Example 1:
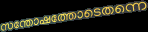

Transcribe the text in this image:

സന്തോഷത്തോടെതന്നെ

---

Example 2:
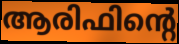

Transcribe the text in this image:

ആരിഫിന്റെ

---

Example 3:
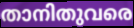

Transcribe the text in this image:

താനിതുവരെ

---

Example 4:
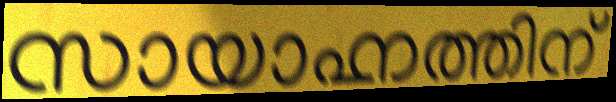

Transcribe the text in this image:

സായാഹ്നത്തിന്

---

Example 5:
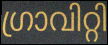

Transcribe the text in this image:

ഗ്രാവിറ്റി